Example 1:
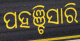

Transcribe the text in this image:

ପହଞ୍ଚିସାରି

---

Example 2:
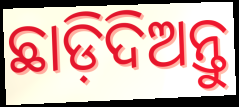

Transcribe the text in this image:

ଛାଡ଼ିଦିଅନ୍ତୁ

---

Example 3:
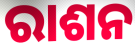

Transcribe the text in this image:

ରାଶନ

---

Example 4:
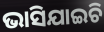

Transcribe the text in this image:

ଭାସିଯାଇଚି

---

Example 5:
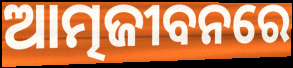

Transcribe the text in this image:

ଆତ୍ମଜୀବନରେ